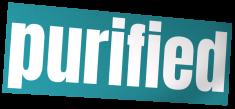
purified